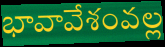
భావావేశంవల్ల